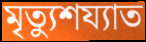
মৃত্যুশয্যাত